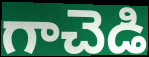
గాచెడి